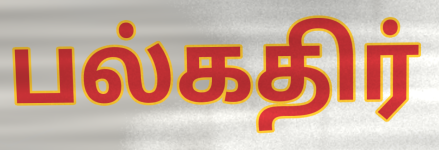
பல்கதிர்